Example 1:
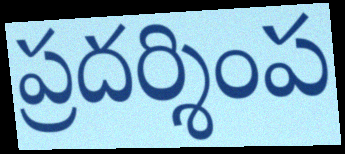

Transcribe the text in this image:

ప్రదర్శింప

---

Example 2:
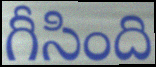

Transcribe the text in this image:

గీసింది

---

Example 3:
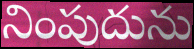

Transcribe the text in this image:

నింపుదును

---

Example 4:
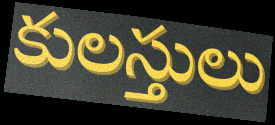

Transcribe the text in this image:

కులస్తులు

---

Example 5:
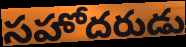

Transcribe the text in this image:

సహోదరుడు